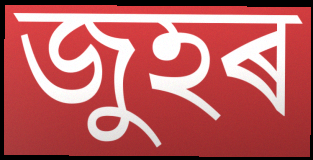
জুহৰ